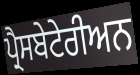
ਪ੍ਰੈਸਬੇਟੇਰੀਅਨ